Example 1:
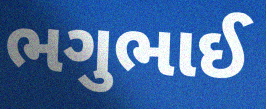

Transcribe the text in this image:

ભગુભાઈ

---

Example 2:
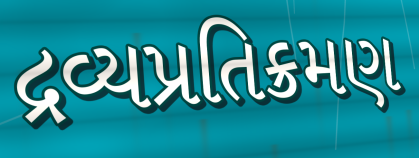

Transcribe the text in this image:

દ્રવ્યપ્રતિક્રમણ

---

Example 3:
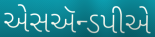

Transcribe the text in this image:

એસઍન્ડપીએ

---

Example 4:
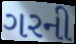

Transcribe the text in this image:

ગરની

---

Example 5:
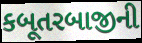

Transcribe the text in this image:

કબૂતરબાજીની